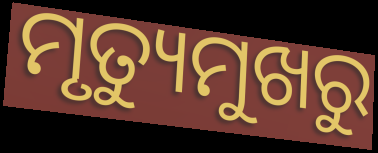
ମୃତ୍ୟୁମୁଖରୁ